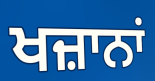
ਖਜ਼ਾਨਾਂ